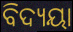
ବିଦ୍ୟୟା